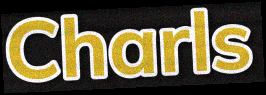
Charls